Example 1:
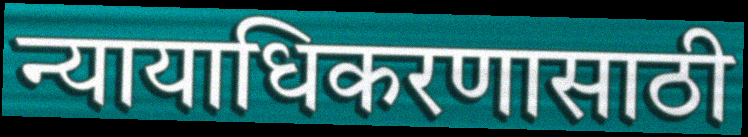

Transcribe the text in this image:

न्यायाधिकरणासाठी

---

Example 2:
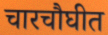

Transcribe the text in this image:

चारचौघीत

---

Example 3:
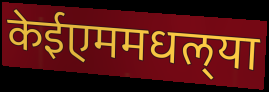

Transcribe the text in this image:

केईएममधल्या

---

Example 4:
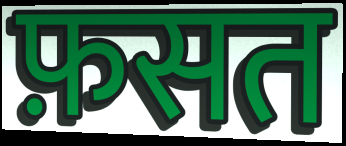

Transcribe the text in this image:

फ़सत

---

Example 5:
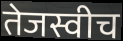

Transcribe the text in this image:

तेजस्वीच